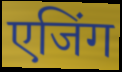
एजिंग